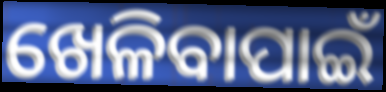
ଖେଳିବାପାଇଁ